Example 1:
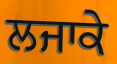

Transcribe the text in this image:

ਲਜਾਕੇ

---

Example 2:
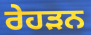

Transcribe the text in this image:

ਰੇਹੜਨ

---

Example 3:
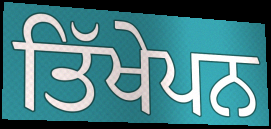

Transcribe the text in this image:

ਤਿੱਖੇਪਨ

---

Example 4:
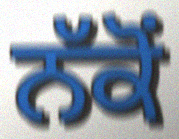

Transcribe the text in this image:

ਨੱਕੋਂ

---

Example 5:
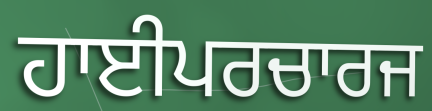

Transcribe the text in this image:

ਹਾਈਪਰਚਾਰਜ